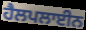
ਹੈਲਪਲਾਈਨ